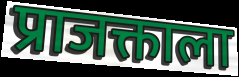
प्राजक्ताला